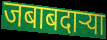
जबाबदार्‍या